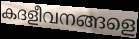
കദളീവനങ്ങളെ